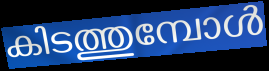
കിടത്തുമ്പോൾ